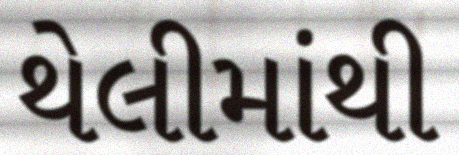
થેલીમાંથી